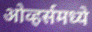
ओव्हर्समध्ये